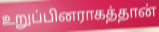
உறுப்பினராகத்தான்